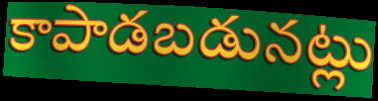
కాపాడబడునట్లు